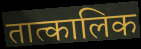
तात्कालिक